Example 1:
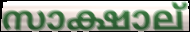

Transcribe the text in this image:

സാക്ഷാല്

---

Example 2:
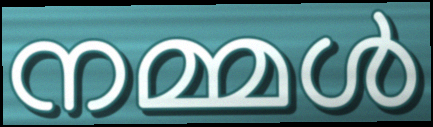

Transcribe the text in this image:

നമ്മൾ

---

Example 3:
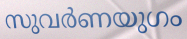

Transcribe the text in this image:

സുവർണയുഗം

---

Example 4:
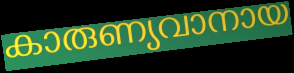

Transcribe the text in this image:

കാരുണ്യവാനായ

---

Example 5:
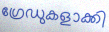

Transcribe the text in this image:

ഗ്രേഡുകളാക്കി